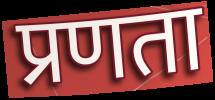
प्रणता